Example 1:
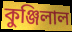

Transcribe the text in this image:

কুঞ্জিলাল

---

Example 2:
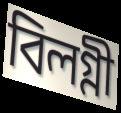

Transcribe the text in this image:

বিলগ্নী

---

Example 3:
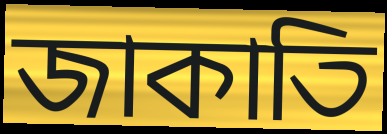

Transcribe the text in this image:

জাকাতি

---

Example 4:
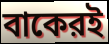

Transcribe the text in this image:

বাকেরই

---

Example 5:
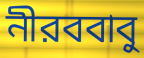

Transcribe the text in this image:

নীরববাবু